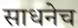
साधनेच